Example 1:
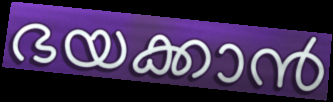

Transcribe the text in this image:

ഭയക്കാൻ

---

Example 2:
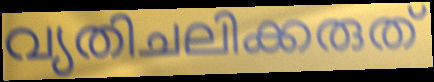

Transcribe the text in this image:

വ്യതിചലിക്കരുത്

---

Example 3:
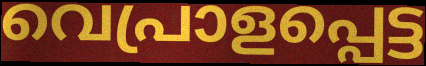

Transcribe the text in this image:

വെപ്രാളപ്പെട്ട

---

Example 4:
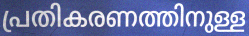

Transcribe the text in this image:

പ്രതികരണത്തിനുള്ള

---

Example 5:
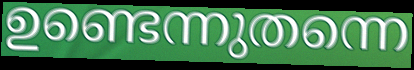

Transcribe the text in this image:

ഉണ്ടെന്നുതന്നെ